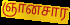
ஞானசார